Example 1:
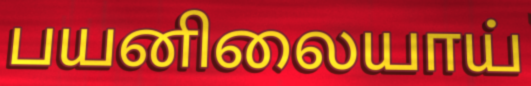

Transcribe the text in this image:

பயனிலையாய்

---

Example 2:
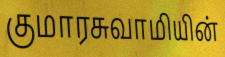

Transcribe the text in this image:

குமாரசுவாமியின்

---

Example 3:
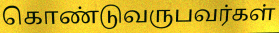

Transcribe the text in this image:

கொண்டுவருபவர்கள்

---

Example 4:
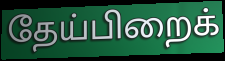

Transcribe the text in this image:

தேய்பிறைக்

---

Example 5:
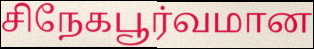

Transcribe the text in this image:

சிநேகபூர்வமான